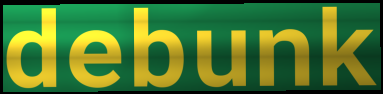
debunk